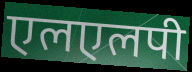
एलएलपी